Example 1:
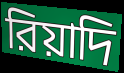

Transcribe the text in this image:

রিয়াদি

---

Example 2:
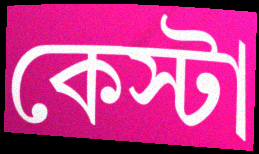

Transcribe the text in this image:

কেস্টা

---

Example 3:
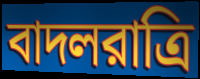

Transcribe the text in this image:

বাদলরাত্রি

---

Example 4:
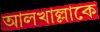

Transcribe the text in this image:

আলখাল্লাকে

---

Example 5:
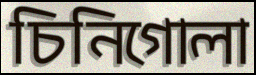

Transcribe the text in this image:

চিনিগোলা